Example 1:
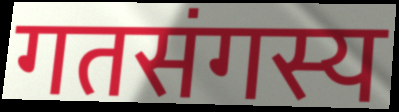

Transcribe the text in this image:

गतसंगस्य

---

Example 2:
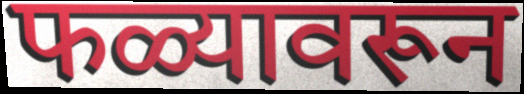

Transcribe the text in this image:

फळ्यावरून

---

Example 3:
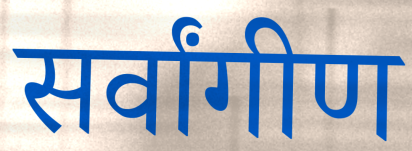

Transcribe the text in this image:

सर्वांगीण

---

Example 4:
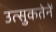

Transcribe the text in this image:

उत्सुकतेनें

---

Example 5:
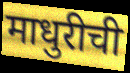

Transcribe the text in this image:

माधुरीची